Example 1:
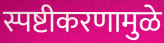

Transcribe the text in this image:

स्पष्टीकरणामुळे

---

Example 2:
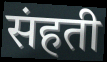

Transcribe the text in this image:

संहती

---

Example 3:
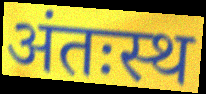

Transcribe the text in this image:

अंतःस्थ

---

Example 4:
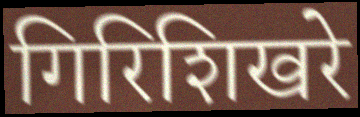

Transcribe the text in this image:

गिरिशिखरे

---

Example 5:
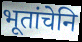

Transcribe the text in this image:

भूतांचेनि